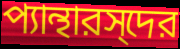
প্যান্থারস্‌দের